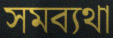
সমব্যথা